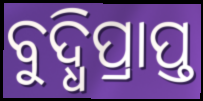
ବୁଦ୍ଧିପ୍ରାପ୍ତ